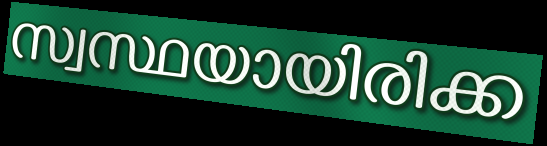
സ്വസ്ഥയായിരിക്ക